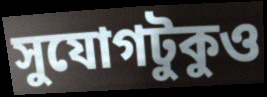
সুযোগটুকুও